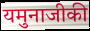
यमुनाजीकी